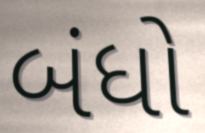
બંધો